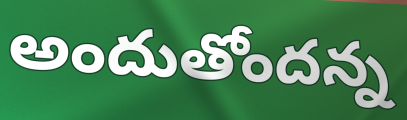
అందుతోందన్న